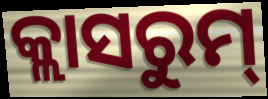
କ୍ଲାସରୁମ୍